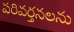
పరివర్తనలను